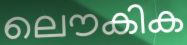
ലൌകിക